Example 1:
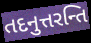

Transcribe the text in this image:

તદનુત્તરન્તિ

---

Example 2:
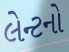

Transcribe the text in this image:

લેન્ટનો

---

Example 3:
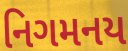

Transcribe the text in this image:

નિગમનય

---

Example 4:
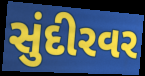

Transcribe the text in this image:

સુંદીરવર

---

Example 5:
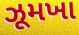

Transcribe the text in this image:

ઝૂમખા